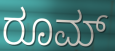
ರೂಮ್